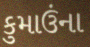
કુમાઉંના